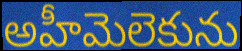
అహీమెలెకును